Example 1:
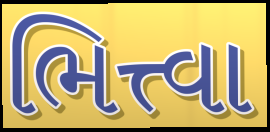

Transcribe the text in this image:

ભિત્ત્વા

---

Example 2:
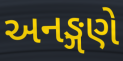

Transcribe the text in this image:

અનઙ્ગણે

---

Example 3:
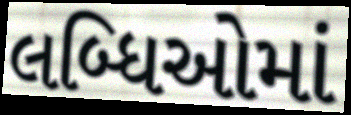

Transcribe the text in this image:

લબ્ધિઓમાં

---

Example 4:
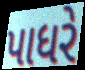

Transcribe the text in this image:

પાધરે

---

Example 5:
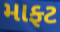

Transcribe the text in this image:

માફ્ટ